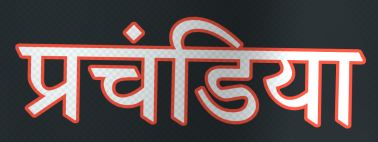
प्रचंडिया